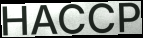
HACCP